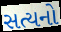
સત્યનો